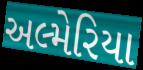
અલ્મેરિયા